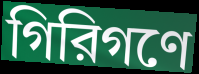
গিরিগণে